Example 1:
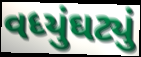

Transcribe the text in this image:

વધ્યુંઘટ્યું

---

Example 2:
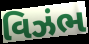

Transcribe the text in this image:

વિઝંભ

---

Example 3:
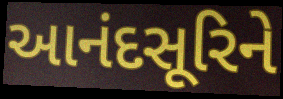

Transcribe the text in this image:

આનંદસૂરિને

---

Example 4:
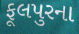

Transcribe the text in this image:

ફૂલપુરના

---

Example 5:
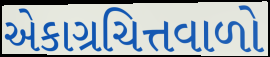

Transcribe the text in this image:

એકાગ્રચિત્તવાળો